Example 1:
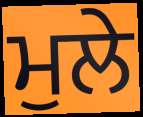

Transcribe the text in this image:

ਮੁਲੇ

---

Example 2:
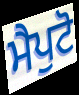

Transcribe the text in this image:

ਮੈਪੁਟੋ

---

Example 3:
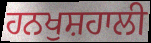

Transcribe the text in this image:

ਹਨਖੁਸ਼ਹਾਲੀ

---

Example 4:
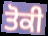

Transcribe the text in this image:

ਤੋਕੀ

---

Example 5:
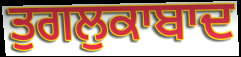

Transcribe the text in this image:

ਤੁਗਲੁਕਾਬਾਦ